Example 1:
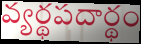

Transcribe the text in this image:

వ్యర్థపదార్థం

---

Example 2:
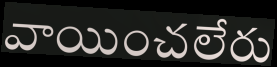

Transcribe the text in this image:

వాయించలేరు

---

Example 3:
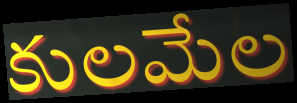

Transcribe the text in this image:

కులమేల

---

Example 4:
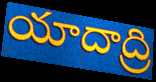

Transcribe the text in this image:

యాదాద్రి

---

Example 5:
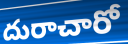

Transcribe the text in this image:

దురాచారో